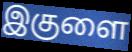
இகுளை